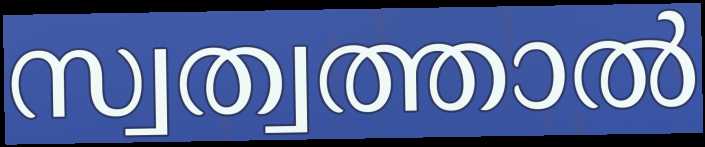
സ്വത്വത്താൽ